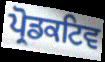
ਪ੍ਰੋਡਕਟਿਵ